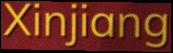
Xinjiang